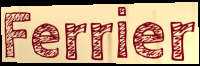
Ferrier